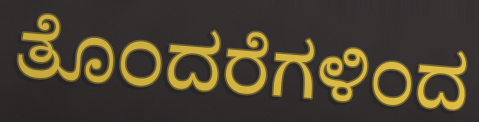
ತೊಂದರೆಗಳಿಂದ